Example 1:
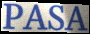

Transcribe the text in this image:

PASA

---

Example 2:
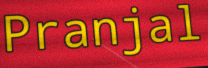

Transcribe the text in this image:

Pranjal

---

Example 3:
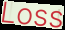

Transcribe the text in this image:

Loss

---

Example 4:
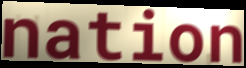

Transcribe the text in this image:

nation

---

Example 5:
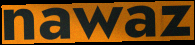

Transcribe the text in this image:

nawaz